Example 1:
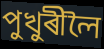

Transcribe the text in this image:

পুখুৰীলৈ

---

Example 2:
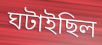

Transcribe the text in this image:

ঘটাইছিল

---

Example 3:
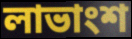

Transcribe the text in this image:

লাভাংশ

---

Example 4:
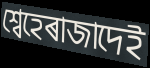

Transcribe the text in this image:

শ্বেহেৰাজাদেই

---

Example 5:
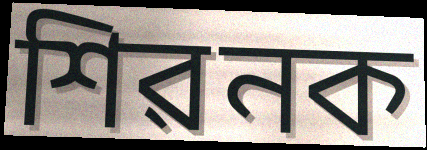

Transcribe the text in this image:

শিৱনক